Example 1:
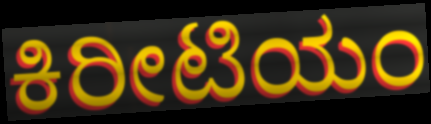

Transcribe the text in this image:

ಕಿರೀಟಿಯಂ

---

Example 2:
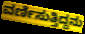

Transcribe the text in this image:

ವರ್ಣಿಸುತ್ತಿದ್ದನು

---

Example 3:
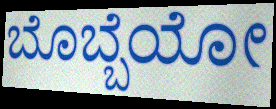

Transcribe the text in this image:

ಬೊಬ್ಬೆಯೋ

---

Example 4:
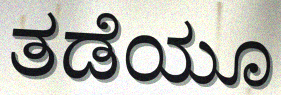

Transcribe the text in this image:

ತಡೆಯೂ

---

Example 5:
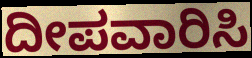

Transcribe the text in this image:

ದೀಪವಾರಿಸಿ